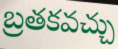
బ్రతకవచ్చు